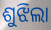
ଶୁଝିଲା